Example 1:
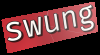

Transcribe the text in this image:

swung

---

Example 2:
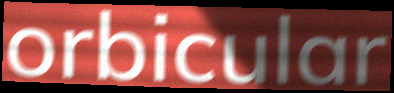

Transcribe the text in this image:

orbicular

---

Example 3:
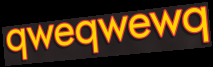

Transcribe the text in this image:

qweqwewq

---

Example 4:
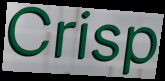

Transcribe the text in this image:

Crisp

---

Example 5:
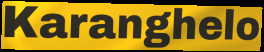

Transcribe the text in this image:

Karanghelo